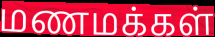
மணமக்கள்